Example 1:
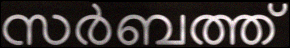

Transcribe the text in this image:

സർബത്ത്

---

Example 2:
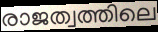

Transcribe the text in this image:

രാജത്വത്തിലെ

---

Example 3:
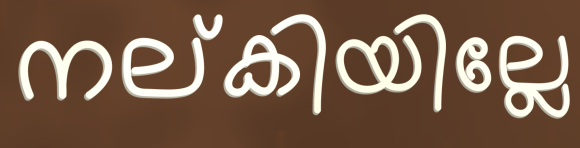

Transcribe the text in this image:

നല്കിയില്ലേ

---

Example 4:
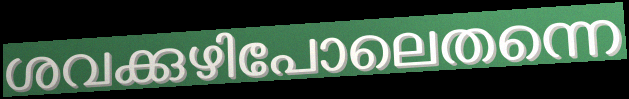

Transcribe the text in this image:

ശവക്കുഴിപോലെതന്നെ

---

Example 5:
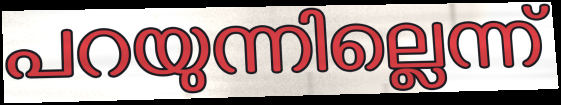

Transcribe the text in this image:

പറയുന്നില്ലെന്ന്